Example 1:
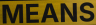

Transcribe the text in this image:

MEANS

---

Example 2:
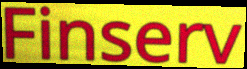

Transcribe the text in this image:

Finserv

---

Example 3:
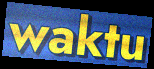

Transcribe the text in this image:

waktu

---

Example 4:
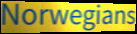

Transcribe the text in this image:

Norwegians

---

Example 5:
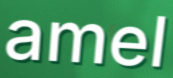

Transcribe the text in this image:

amel